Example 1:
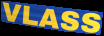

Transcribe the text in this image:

VLASS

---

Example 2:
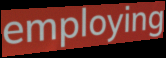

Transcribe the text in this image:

employing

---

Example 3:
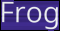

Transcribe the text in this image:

Frog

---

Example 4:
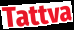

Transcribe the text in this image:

Tattva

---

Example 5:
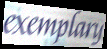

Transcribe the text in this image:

exemplary